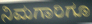
ನಿಮಗಾರಿಗೂ